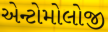
એન્ટોમોલોજી